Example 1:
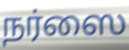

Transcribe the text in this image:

நர்ஸை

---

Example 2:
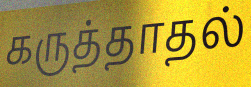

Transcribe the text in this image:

கருத்தாதல்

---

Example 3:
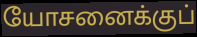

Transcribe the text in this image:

யோசனைக்குப்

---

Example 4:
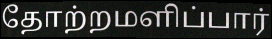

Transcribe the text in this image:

தோற்றமளிப்பார்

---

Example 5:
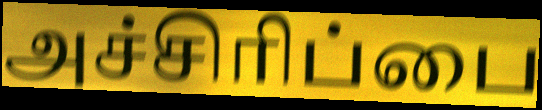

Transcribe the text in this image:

அச்சிரிப்பை